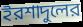
ইরশাদুলের